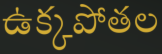
ఉక్కపోతల